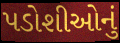
પડોશીઓનું